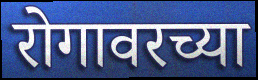
रोगावरच्या